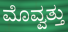
ಮೊವ್ವತ್ತು